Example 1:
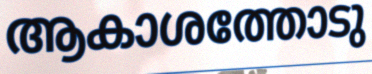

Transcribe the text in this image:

ആകാശത്തോടു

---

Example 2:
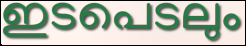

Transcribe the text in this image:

ഇടപെടലും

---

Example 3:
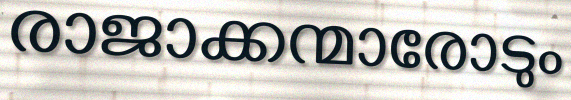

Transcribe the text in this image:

രാജാക്കന്മാരോടും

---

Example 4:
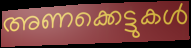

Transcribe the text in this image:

അണക്കെട്ടുകൾ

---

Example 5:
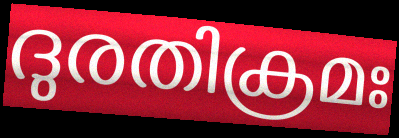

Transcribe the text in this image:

ദുരതിക്രമഃ